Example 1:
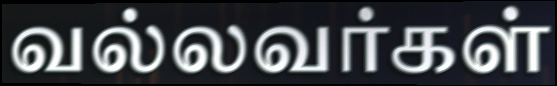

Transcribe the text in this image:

வல்லவர்கள்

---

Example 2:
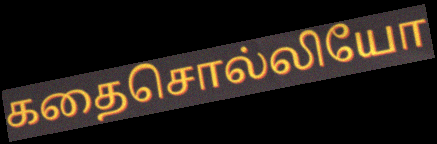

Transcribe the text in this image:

கதைசொல்லியோ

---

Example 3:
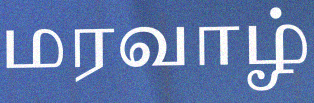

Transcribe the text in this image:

மரவாழ்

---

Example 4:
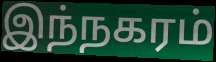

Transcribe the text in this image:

இந்நகரம்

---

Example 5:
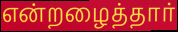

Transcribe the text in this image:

என்றழைத்தார்